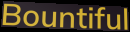
Bountiful